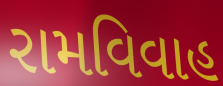
રામવિવાહ